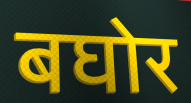
बघोर